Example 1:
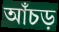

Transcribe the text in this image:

আঁচড়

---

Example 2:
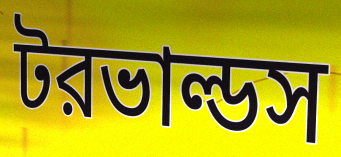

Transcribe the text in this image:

টরভাল্ডস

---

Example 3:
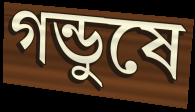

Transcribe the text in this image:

গন্ডুষে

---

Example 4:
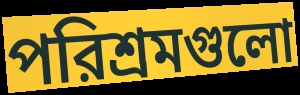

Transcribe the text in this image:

পরিশ্রমগুলো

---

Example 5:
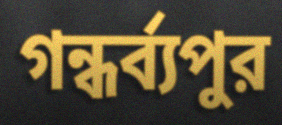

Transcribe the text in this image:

গন্ধর্ব্যপুর